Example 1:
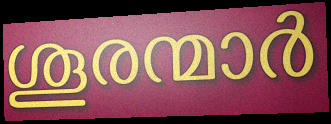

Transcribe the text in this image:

ശൂരന്മാർ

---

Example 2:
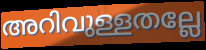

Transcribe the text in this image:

അറിവുള്ളതല്ലേ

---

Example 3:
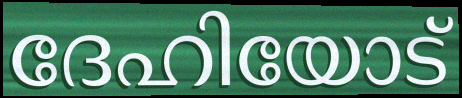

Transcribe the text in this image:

ദേഹിയോട്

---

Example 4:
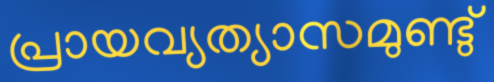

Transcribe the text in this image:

പ്രായവ്യത്യാസമുണ്ടു്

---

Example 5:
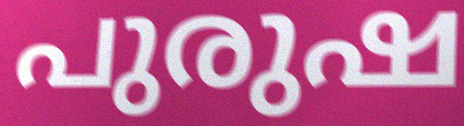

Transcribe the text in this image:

പുരുഷ